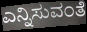
ಎನ್ನಿಸುವಂತೆ